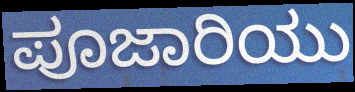
ಪೂಜಾರಿಯು